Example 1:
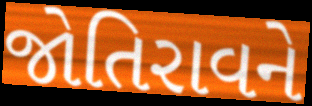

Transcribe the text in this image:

જોતિરાવને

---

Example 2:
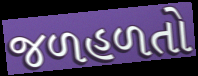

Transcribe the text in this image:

જળહળતો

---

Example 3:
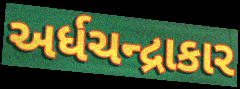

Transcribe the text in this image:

અર્ધચન્દ્રાકાર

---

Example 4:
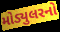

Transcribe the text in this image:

મોડ્યુલરનો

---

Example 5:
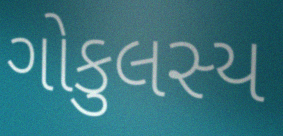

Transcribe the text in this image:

ગોકુલસ્ય